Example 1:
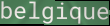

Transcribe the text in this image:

belgique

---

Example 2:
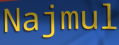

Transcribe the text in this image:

Najmul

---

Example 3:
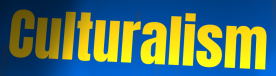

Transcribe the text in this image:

Culturalism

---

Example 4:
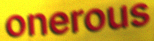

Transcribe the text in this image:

onerous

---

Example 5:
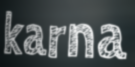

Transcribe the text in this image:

karna